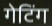
गेटिंग